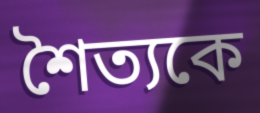
শৈত্যকে